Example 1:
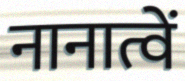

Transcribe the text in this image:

नानात्वें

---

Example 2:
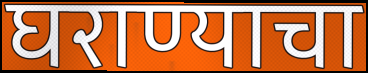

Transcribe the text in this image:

घराण्याचा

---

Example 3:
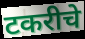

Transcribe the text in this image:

टकरीचे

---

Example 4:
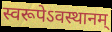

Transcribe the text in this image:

स्वरूपेऽवस्थानम्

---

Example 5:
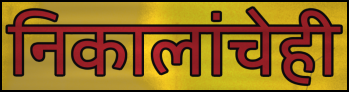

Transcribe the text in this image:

निकालांचेही